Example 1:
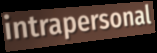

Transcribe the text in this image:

intrapersonal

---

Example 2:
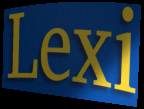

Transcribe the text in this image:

Lexi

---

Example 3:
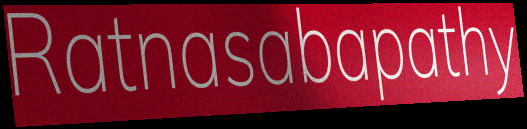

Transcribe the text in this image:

Ratnasabapathy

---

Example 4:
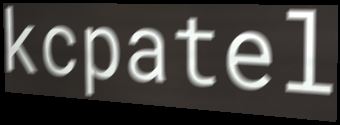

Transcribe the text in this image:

kcpatel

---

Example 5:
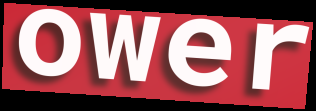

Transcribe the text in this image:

ower